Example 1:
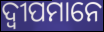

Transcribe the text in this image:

ଦ୍ୱୀପମାନେ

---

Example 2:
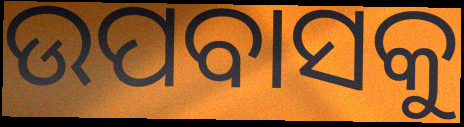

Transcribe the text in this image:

ଉପବାସକୁ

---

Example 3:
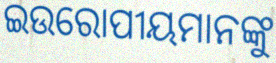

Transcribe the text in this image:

ଇଉରୋପୀୟମାନଙ୍କୁ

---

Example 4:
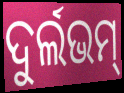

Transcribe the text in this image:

ଦୁର୍ଲଭମ୍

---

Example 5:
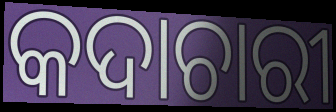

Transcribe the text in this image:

କଦାଚାରୀ